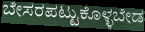
ಬೇಸರಪಟ್ಟುಕೊಳ್ಳಬೇಡ